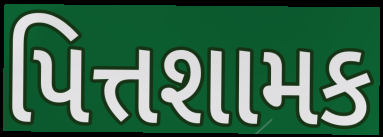
પિત્તશામક